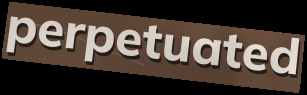
perpetuated